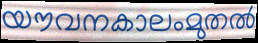
യൗവനകാലംമുതൽ